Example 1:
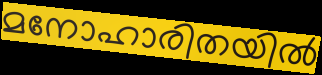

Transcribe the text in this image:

മനോഹാരിതയിൽ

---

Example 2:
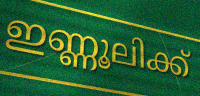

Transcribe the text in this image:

ഇണ്ണൂലിക്ക്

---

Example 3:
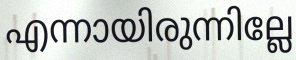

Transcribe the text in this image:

എന്നായിരുന്നില്ലേ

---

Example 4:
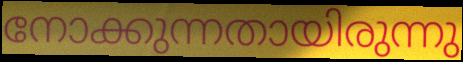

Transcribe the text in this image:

നോക്കുന്നതായിരുന്നു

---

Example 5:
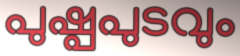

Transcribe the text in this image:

പുഷ്പപുടവും